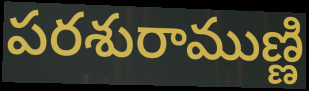
పరశురాముణ్ణి